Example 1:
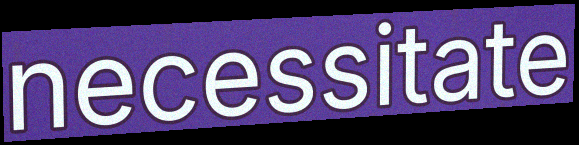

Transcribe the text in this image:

necessitate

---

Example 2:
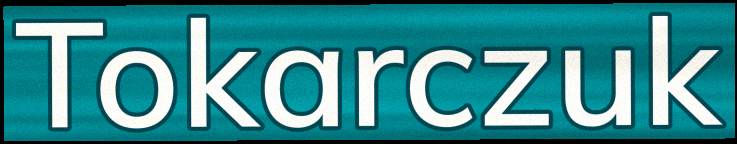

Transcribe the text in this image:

Tokarczuk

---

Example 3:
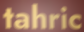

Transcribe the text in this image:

tahric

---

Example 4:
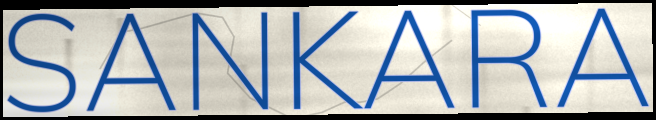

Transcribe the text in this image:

SANKARA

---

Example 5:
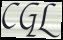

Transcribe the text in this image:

CGL